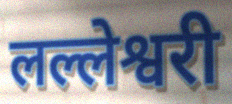
लल्लेश्वरी